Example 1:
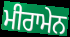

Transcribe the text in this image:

ਮੀਰਾਮੇਨ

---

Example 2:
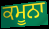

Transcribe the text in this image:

ਕਮੂਨਾ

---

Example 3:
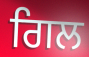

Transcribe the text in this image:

ਗਿਲ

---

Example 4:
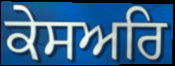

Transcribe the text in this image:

ਕੇਸਅਰਿ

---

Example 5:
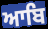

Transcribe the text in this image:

ਆਬਿ